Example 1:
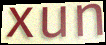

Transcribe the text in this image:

xun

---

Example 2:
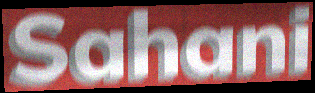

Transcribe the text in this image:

Sahani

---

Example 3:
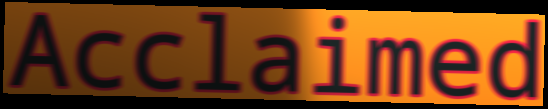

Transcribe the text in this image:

Acclaimed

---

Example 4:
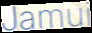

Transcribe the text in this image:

Jamui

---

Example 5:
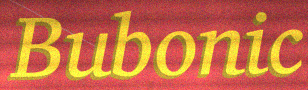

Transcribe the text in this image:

Bubonic